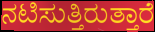
ನಟಿಸುತ್ತಿರುತ್ತಾರೆ